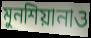
মুনশিয়ানাও